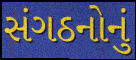
સંગઠનોનું